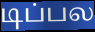
டிப்பல